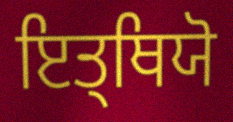
ਇਤ੍ਥਿਯੋ